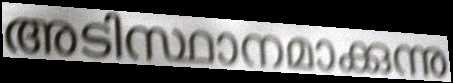
അടിസ്ഥാനമാക്കുന്നു